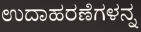
ಉದಾಹರಣೆಗಳನ್ನ